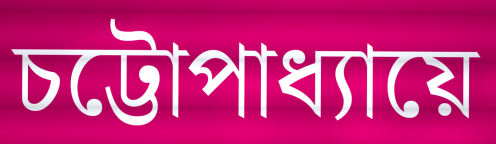
চট্টোপাধ্যায়ে